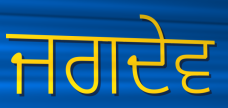
ਜਗਦੇਵ